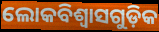
ଲୋକବିଶ୍ୱାସଗୁଡ଼ିକ